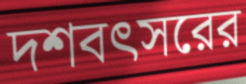
দশবৎসরের